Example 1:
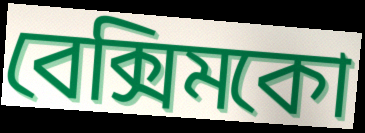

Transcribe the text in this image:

বেক্সিমকো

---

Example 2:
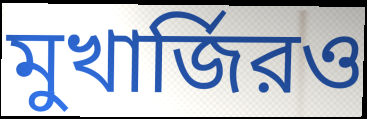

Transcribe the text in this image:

মুখার্জিরও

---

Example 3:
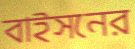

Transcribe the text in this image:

বাইসনের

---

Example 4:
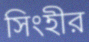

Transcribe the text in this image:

সিংহীর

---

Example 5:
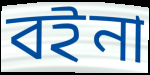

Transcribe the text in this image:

বইনা